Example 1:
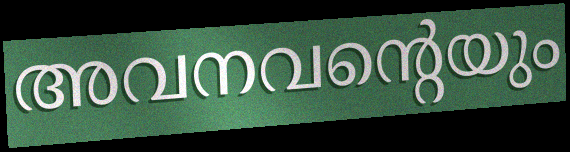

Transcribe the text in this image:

അവനവന്റെയും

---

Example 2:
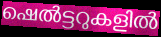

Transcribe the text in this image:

ഷെൽട്ടറുകളിൽ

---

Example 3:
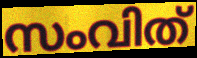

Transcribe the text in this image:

സംവിത്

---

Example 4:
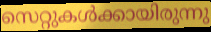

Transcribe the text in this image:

സെറ്റുകൾക്കായിരുന്നു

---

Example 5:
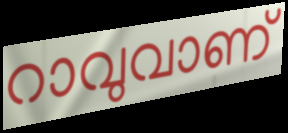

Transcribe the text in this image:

റാവുവാണ്